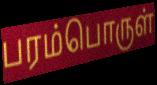
பரம்பொருள்